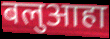
बलुआहा